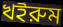
খইরুম